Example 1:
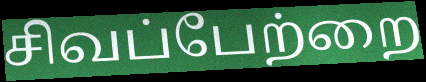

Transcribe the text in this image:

சிவப்பேற்றை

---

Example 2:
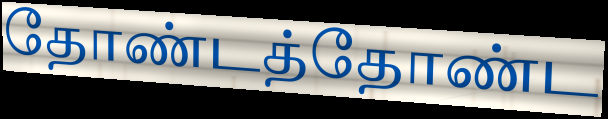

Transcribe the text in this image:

தோண்டத்தோண்ட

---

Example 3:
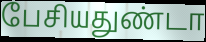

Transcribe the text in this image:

பேசியதுண்டா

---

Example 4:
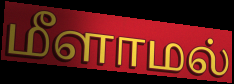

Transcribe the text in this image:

மீளாமல்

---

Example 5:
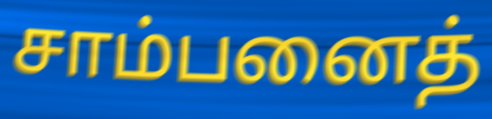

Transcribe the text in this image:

சாம்பனைத்